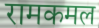
रामकमल